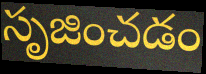
సృజించడం